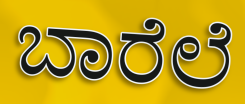
ಬಾರೆಲೆ